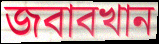
জবাবখান